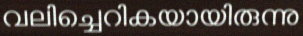
വലിച്ചെറികയായിരുന്നു